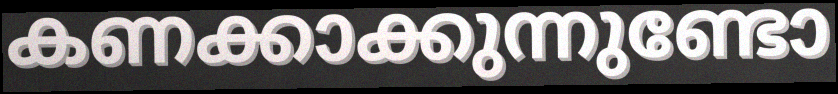
കണക്കാക്കുന്നുണ്ടോ